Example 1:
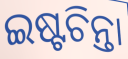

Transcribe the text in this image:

ଇଷ୍ଟଚିନ୍ତା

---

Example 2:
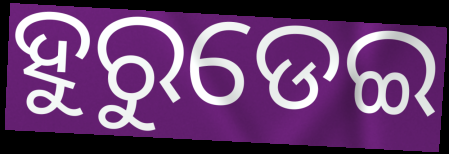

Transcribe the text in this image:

ହୁରୁଡେଇ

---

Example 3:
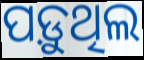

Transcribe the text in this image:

ପଡ଼ୁଥିଲ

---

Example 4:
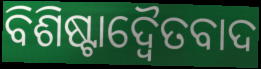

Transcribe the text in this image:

ବିଶିଷ୍ଟାଦ୍ଵୈତବାଦ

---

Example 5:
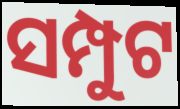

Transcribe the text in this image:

ସମ୍ପୁଟ